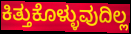
ಕಿತ್ತುಕೊಳ್ಳುವುದಿಲ್ಲ